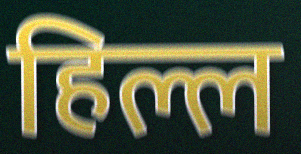
हिल्ल